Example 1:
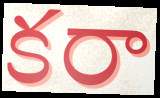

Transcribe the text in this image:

కరా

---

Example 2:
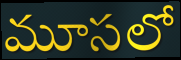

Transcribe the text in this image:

మూసలో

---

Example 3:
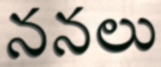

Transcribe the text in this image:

ననలు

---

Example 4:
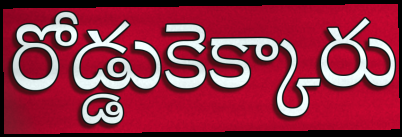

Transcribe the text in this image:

రోడ్డుకెక్కారు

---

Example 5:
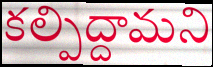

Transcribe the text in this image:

కల్పిద్దామని